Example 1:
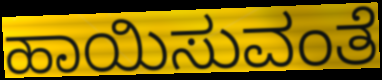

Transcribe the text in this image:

ಹಾಯಿಸುವಂತೆ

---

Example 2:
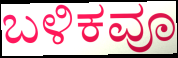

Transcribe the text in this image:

ಬಳಿಕವೂ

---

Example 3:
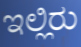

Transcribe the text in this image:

ಇಲ್ಲಿರು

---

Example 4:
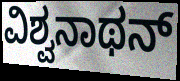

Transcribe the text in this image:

ವಿಶ್ವನಾಥನ್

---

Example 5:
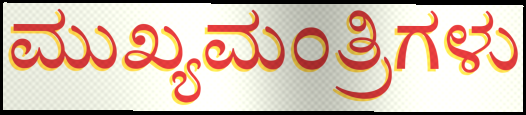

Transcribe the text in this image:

ಮುಖ್ಯಮಂತ್ರಿಗಳು